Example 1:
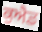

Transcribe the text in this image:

ਕੁਐਡ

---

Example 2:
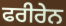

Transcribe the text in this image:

ਫਰੀਰੇਨ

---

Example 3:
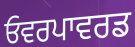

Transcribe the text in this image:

ਓਵਰਪਾਵਰਡ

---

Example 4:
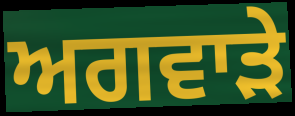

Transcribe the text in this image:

ਅਗਵਾੜੇ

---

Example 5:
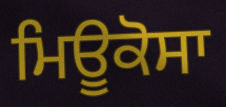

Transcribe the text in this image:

ਮਿਊਕੋਸਾ